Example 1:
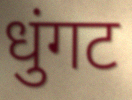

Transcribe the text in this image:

धुंगट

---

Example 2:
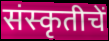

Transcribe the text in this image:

संस्कृतीचें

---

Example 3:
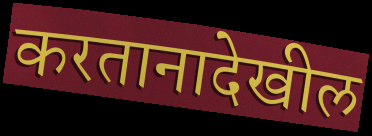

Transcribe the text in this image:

करतानादेखील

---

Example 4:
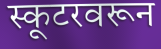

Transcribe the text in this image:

स्कूटरवरून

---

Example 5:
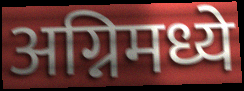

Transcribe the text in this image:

अग्निमध्ये